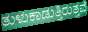
ತುಳುಕಾಡುತ್ತಿರುತ್ತವೆ